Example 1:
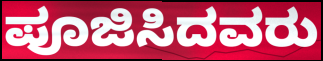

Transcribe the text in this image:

ಪೂಜಿಸಿದವರು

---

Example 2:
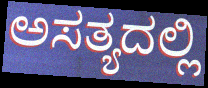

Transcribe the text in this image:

ಅಸತ್ಯದಲ್ಲಿ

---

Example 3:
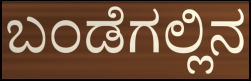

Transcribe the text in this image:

ಬಂಡೆಗಲ್ಲಿನ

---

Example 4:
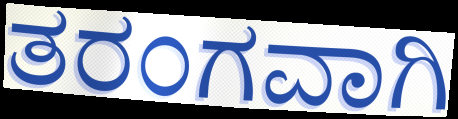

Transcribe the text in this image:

ತರಂಗವಾಗಿ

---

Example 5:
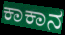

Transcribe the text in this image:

ಕಾಕಾನ